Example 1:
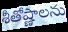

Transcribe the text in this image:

శీతోష్ణాలను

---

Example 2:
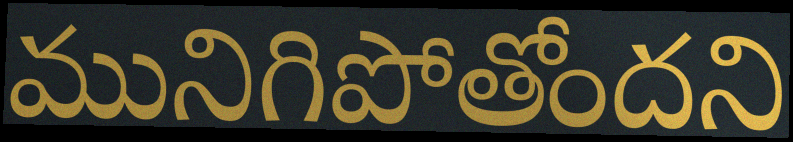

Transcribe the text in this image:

మునిగిపోతోందని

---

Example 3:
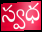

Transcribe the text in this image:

స్వధ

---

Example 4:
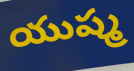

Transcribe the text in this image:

యుష్మ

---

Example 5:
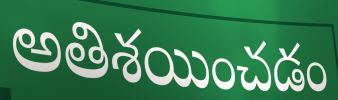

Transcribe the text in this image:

అతిశయించడం